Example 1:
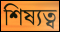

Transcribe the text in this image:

শিষ্যত্ব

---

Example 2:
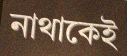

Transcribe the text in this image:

নাথাকেই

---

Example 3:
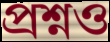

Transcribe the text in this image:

প্ৰশ্নও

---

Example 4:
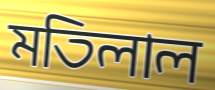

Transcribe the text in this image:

মতিলাল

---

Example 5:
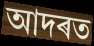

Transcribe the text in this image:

আদৰত